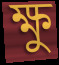
ক্ষু